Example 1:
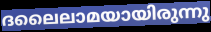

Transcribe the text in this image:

ദലൈലാമയായിരുന്നു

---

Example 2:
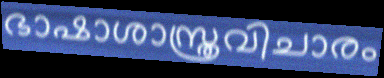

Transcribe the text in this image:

ഭാഷാശാസ്ത്രവിചാരം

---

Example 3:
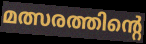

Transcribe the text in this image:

മത്സരത്തിന്റെ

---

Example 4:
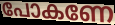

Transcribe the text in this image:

പോകണേ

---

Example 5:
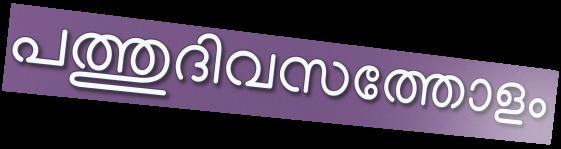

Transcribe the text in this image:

പത്തുദിവസത്തോളം